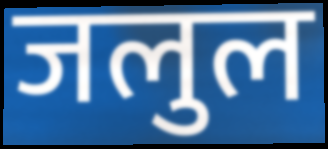
जलुल